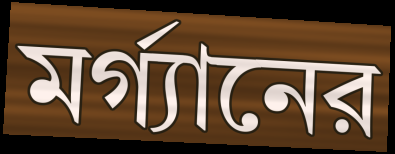
মর্গ্যানের